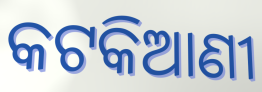
କଟକିଆଣୀ